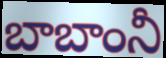
బాబాంనీ